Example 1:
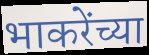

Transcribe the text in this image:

भाकरेंच्या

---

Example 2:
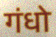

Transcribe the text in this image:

गंधो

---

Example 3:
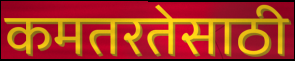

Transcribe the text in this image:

कमतरतेसाठी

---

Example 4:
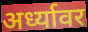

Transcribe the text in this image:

अर्ध्यावर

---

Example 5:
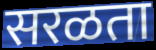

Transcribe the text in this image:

सरळता